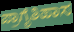
ಪ್ರಾಗೈತಿಹಾಸ